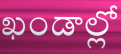
ఖండాల్లో